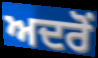
ਅਦਰੋਂ